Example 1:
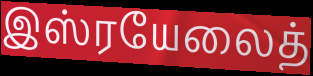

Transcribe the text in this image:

இஸ்ரயேலைத்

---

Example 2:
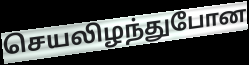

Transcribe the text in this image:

செயலிழந்துபோன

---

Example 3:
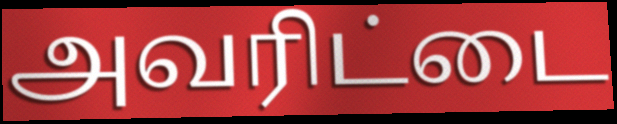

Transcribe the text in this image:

அவரிட்டை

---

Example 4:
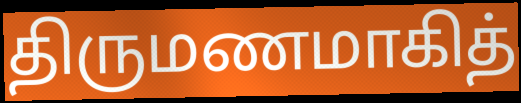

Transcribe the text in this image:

திருமணமாகித்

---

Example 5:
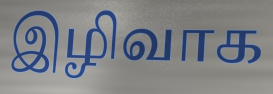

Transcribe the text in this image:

இழிவாக